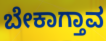
ಬೇಕಾಗ್ತಾವ